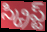
స్క్రిప్ట్